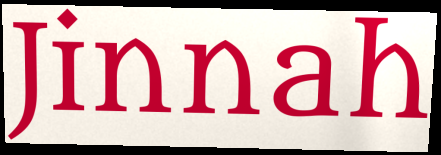
Jinnah